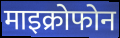
माइक्रोफोन